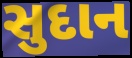
સુદાન